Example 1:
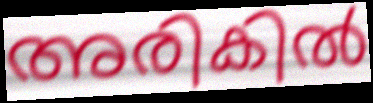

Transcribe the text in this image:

അരികിൽ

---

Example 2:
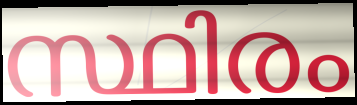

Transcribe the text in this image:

സ്ഥിരം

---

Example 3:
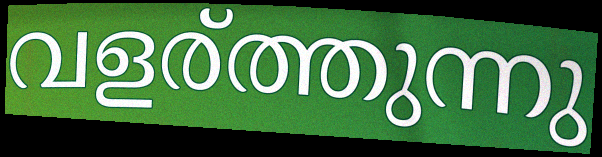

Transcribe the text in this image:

വളര്ത്തുന്നു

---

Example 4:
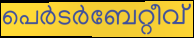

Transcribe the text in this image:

പെർടർബേറ്റീവ്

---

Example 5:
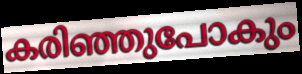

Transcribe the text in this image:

കരിഞ്ഞുപോകും